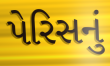
પેરિસનું